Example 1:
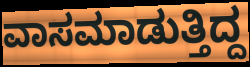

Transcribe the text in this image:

ವಾಸಮಾಡುತ್ತಿದ್ದ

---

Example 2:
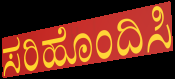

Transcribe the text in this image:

ಸರಿಹೊಂದಿಸಿ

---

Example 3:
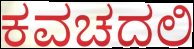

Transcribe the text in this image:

ಕವಚದಲಿ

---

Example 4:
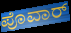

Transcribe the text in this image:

ಪೊವಾರ್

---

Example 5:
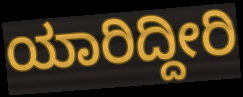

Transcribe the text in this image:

ಯಾರಿದ್ದೀರಿ